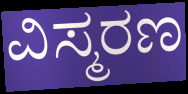
ವಿಸ್ಮರಣ